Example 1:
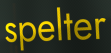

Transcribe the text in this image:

spelter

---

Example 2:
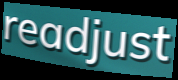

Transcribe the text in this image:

readjust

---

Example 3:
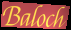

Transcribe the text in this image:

Baloch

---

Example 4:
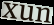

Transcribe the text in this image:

xun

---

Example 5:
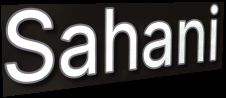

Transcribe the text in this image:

Sahani